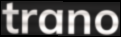
trano